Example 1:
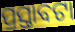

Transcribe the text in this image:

ପ୍ରସ୍ତାବଟା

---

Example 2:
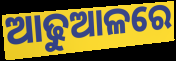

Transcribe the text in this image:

ଆଢୁଆଳରେ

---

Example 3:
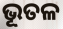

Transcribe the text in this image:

ଭୂତଳ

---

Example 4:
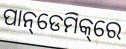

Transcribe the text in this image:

ପାନ୍‌ଡେମିକ୍‌ରେ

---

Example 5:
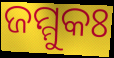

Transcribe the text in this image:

ଜମ୍ମୁକଃ